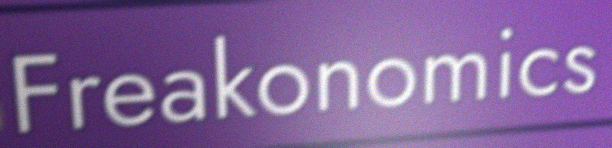
Freakonomics